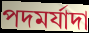
পদমর্যাদা